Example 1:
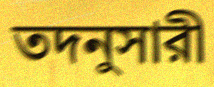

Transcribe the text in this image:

তদনুসারী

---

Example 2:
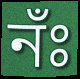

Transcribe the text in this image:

নঁঃ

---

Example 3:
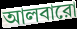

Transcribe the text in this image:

আলবারো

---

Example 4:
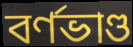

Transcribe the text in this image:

বর্ণভাণ্ড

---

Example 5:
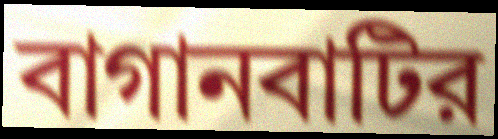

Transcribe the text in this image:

বাগানবাটির